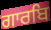
ਗਾਰਬਿ